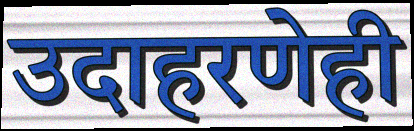
उदाहरणेही